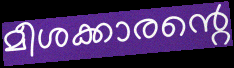
മീശക്കാരന്റെ